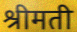
श्रीमती